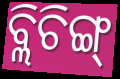
ବ୍ଲିଚିଙ୍ଗ୍